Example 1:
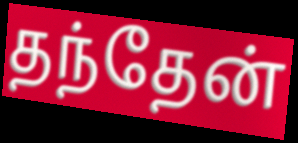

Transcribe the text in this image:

தந்தேன்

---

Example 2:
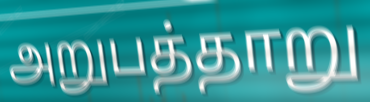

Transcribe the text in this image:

அறுபத்தாறு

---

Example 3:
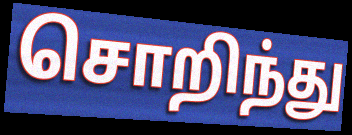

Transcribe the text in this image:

சொறிந்து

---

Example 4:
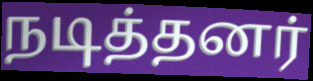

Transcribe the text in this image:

நடித்தனர்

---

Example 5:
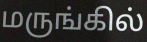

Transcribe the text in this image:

மருங்கில்